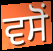
ਵਸੋਂ